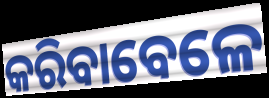
କରିବାବେଳେ